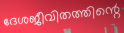
ദേശജീവിതത്തിന്റെ